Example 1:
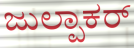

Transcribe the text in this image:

ಜುಲ್ಪಾಕರ್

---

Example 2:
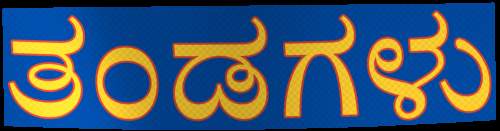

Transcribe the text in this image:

ತಂಡಗಳು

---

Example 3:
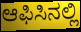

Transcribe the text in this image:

ಆಫಿಸಿನಲ್ಲಿ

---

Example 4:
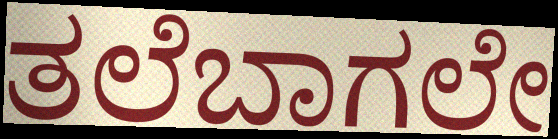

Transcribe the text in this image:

ತಲೆಬಾಗಲೇ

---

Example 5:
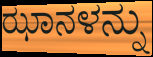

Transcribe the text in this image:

ಝಾನಳನ್ನು